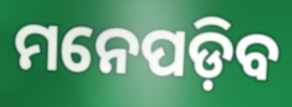
ମନେପଡ଼ିବ